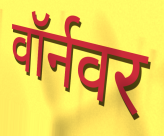
वॉर्नवर